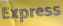
Express